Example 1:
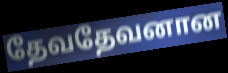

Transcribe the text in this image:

தேவதேவனான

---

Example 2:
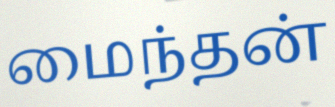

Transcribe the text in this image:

மைந்தன்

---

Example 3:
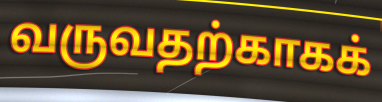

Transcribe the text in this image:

வருவதற்காகக்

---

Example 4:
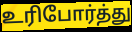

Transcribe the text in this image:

உரிபோர்த்து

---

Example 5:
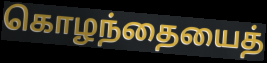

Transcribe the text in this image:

கொழந்தையைத்